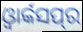
ଓ୍ୱାର୍କସପ୍‌ର